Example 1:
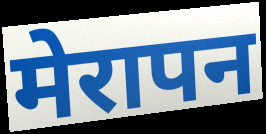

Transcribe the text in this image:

मेरापन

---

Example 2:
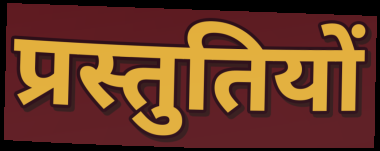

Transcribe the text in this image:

प्रस्तुतियों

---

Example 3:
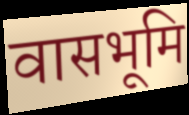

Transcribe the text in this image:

वासभूमि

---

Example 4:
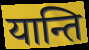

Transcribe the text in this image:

यान्ति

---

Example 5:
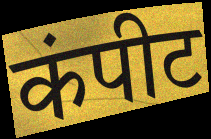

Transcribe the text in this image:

कंपीट